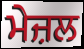
ਮੇਜ਼ਲ